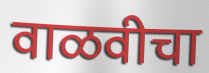
वाळवीचा